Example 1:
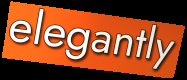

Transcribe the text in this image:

elegantly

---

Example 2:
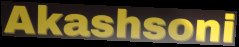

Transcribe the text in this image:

Akashsoni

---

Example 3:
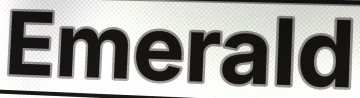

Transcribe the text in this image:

Emerald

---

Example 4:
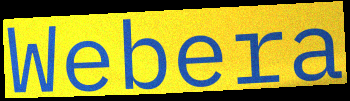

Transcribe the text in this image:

Webera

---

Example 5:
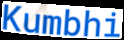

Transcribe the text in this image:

Kumbhi